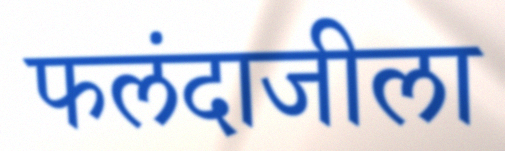
फलंदाजीला